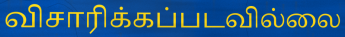
விசாரிக்கப்படவில்லை